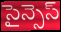
సైన్సెస్